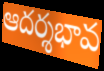
ఆదర్శభావ